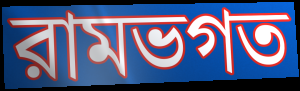
রামভগত